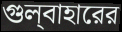
গুল্‌বাহারের